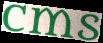
cms